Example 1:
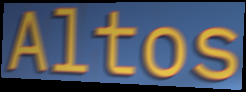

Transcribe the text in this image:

Altos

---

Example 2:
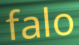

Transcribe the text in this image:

falo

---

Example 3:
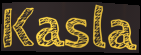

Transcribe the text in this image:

Kasla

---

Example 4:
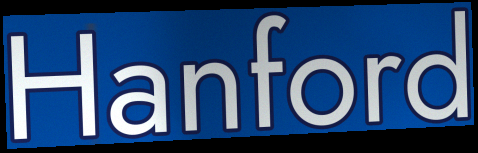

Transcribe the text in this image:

Hanford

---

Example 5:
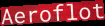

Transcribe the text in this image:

Aeroflot